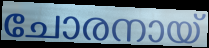
ചോരനായ്